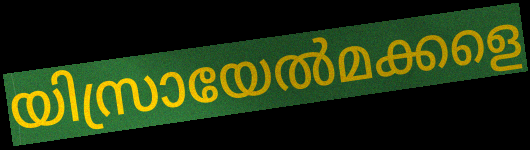
യിസ്രായേൽമക്കളെ